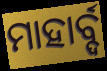
ମାହାର୍ବ୍ଦ